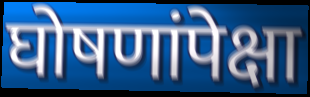
घोषणांपेक्षा